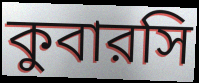
কুবারসি